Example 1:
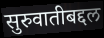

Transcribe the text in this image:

सुरुवातीबद्दल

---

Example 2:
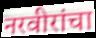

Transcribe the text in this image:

नरवीरांचा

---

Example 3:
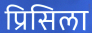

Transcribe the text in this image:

प्रिसिला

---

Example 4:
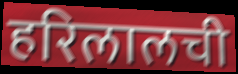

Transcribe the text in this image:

हरिलालची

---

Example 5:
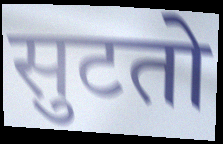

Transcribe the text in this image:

सुटतो